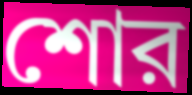
শোর